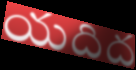
యదిద